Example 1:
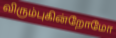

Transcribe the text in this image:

விரும்புகின்றோமோ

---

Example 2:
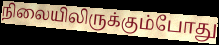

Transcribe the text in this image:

நிலையிலிருக்கும்போது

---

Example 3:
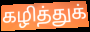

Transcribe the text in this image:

கழித்துக்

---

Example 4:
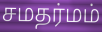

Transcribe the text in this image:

சமதர்மம்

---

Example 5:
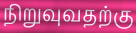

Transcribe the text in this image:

நிறுவுவதற்கு